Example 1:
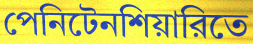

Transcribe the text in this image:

পেনিটেনশিয়ারিতে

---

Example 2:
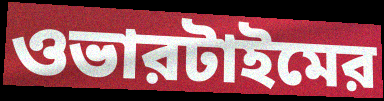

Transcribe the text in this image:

ওভারটাইমের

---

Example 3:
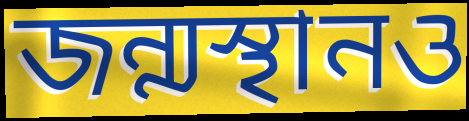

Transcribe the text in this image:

জন্মস্থানও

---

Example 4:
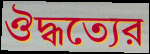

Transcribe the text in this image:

ঔদ্ধত্যের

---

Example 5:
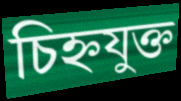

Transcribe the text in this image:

চিহ্নযুক্ত